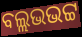
ବଲ୍ଲଭଭଟ୍ଟ